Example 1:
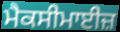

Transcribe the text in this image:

ਮੈਕਸੀਮਾਈਜ਼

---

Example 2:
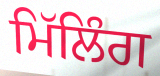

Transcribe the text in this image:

ਮਿੱਲਿੰਗ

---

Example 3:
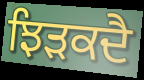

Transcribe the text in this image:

ਝਿੜਕਦੈ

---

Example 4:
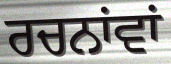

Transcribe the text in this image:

ਰਚਨਾਂਵਾਂ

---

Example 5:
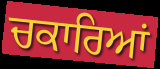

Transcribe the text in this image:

ਚਕਾਰਿਆਂ